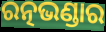
ରତ୍ନଭଣ୍ଡାର